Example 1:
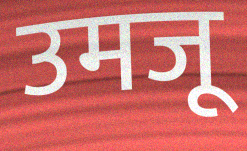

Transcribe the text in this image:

उमजू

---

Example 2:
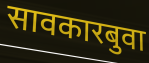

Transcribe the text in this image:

सावकारबुवा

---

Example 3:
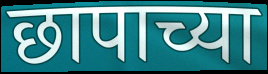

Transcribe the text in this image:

छापाच्या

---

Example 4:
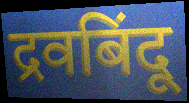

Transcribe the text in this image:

द्रवबिंदू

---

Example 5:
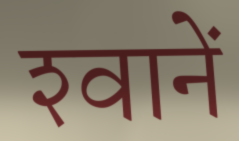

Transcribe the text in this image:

श्वानें